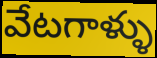
వేటగాళ్ళు